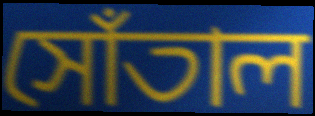
সোঁতাল